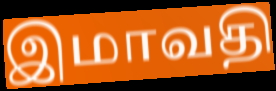
இமாவதி